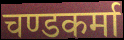
चण्डकर्मा